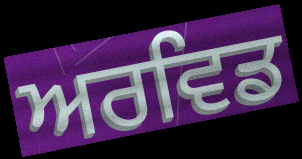
ਅਰਵਿਡ